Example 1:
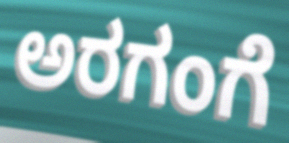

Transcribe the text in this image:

ಅರಗಂಗೆ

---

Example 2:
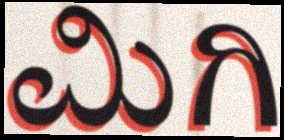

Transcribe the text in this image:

ಮಿಗಿ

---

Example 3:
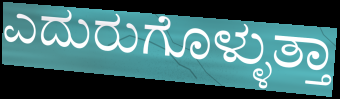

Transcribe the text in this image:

ಎದುರುಗೊಳ್ಳುತ್ತಾ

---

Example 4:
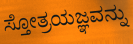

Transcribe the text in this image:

ಸ್ತೋತ್ರಯಜ್ಞವನ್ನು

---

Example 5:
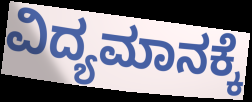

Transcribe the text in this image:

ವಿದ್ಯಮಾನಕ್ಕೆ